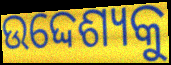
ଉଦ୍ଦେଶ୍ୟକୁ